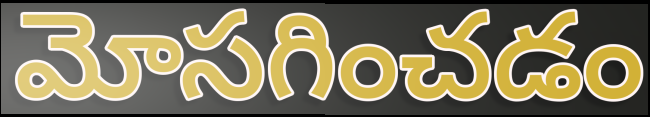
మోసగించడం